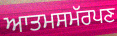
ਆਤਮਸਮੱਰਪਣ